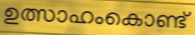
ഉത്സാഹംകൊണ്ട്